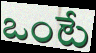
ఒంటే